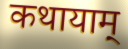
कथायाम्